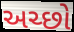
અચ્છો